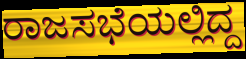
ರಾಜಸಭೆಯಲ್ಲಿದ್ದ